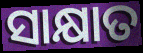
ସାକ୍ଷାତ